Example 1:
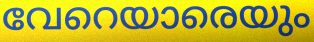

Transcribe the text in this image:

വേറെയാരെയും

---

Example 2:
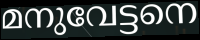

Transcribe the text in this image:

മനുവേട്ടനെ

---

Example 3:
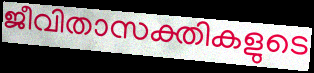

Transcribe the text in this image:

ജീവിതാസക്തികളുടെ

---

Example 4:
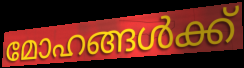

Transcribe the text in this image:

മോഹങ്ങൾക്ക്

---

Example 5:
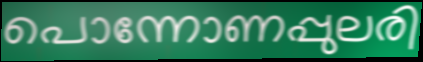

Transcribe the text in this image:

പൊന്നോണപ്പുലരി